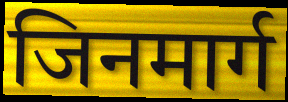
जिनमार्ग